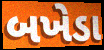
બખેડા